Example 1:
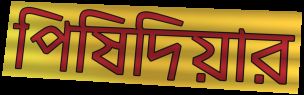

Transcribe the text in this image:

পিষিদিয়ার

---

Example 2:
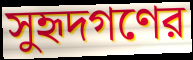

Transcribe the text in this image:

সুহৃদগণের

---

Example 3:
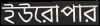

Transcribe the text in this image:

ইউরোপার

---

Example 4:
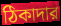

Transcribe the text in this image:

ঠিকাদার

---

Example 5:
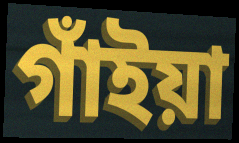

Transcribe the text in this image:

গাঁইয়া